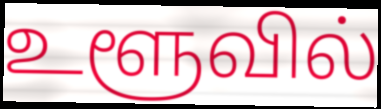
உளூவில்